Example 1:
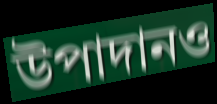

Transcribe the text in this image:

উপাদানও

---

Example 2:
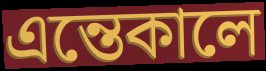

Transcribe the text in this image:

এন্তেকালে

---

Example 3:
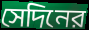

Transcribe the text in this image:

সেদিনের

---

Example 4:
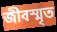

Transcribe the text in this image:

জীবস্মৃত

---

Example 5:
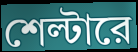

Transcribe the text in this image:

শেল্টারে